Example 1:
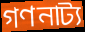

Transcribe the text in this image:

গণনাট্য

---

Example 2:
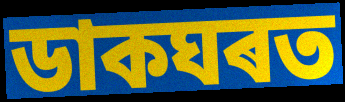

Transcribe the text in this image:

ডাকঘৰত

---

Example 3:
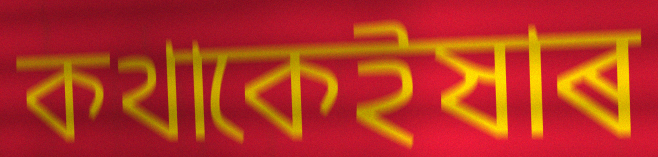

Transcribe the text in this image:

কথাকেইষাৰ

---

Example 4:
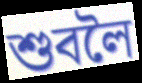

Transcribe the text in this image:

শুবলৈ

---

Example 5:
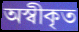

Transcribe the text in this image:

অস্বীকৃত